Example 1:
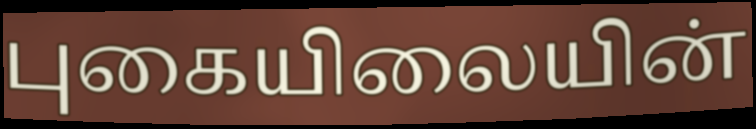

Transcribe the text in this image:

புகையிலையின்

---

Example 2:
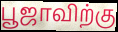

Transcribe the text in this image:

பூஜாவிற்கு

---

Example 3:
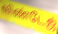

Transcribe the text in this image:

விண்டேஜ்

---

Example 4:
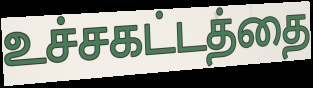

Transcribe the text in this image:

உச்சகட்டத்தை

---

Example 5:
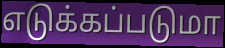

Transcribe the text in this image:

எடுக்கப்படுமா